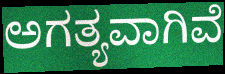
ಅಗತ್ಯವಾಗಿವೆ